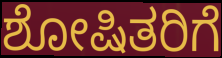
ಶೋಷಿತರಿಗೆ